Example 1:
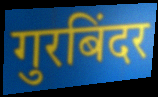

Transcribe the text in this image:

गुरबिंदर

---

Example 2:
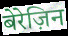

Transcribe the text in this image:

बेरेज़िन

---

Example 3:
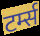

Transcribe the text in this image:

टर्म्स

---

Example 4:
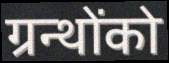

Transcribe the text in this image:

ग्रन्थोंको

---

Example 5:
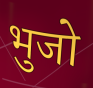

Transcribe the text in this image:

भुजो